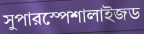
সুপারস্পেশালাইজড